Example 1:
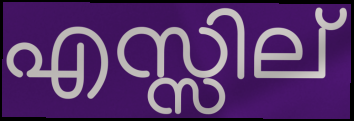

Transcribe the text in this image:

എസ്സില്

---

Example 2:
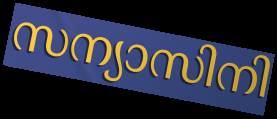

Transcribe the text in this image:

സന്യാസിനി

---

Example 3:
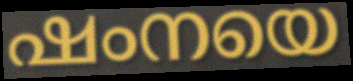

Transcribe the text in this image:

ഷംനയെ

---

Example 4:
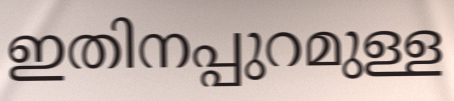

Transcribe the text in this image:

ഇതിനപ്പുറമുള്ള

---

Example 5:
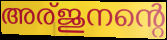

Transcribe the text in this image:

അര്ജുനന്റെ